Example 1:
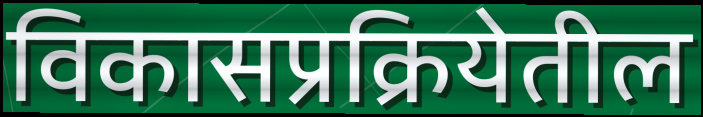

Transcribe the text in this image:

विकासप्रक्रियेतील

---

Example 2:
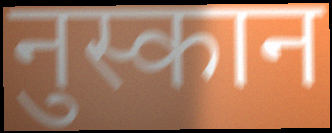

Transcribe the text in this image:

नुस्कान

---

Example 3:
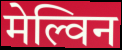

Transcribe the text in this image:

मेल्विन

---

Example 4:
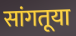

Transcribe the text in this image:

सांगतूया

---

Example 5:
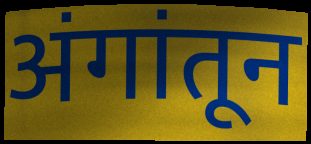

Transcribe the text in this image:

अंगांतून